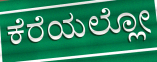
ಕೆರೆಯಲ್ಲೋ